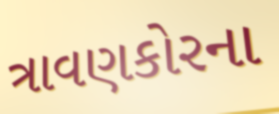
ત્રાવણકોરના